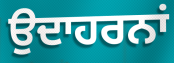
ਉਦਾਹਰਨਾਂ